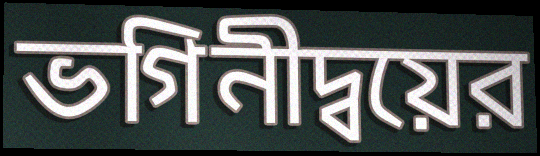
ভগিনীদ্বয়ের